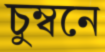
চুম্বনে